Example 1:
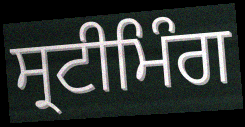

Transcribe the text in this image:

ਸ੍ਰਟੀਮਿੰਗ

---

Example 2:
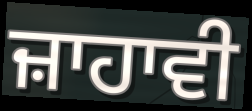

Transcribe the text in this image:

ਜ਼ਾਹਾਵੀ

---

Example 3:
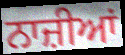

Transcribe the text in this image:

ਨਾਜ਼ੀਆਂ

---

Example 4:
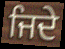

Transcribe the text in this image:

ਜਿਦੇ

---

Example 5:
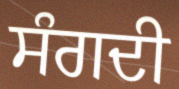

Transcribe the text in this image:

ਸੰਗਦੀ